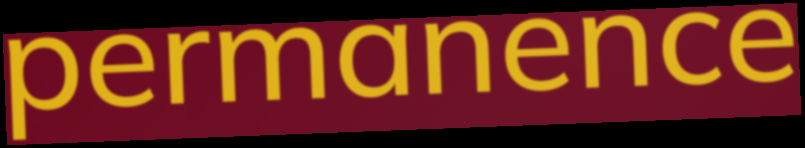
permanence